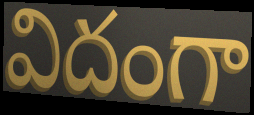
విదంగా